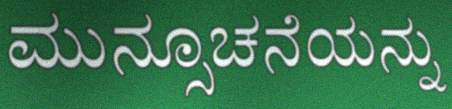
ಮುನ್ಸೂಚನೆಯನ್ನು